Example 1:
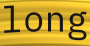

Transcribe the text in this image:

long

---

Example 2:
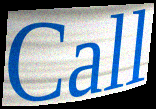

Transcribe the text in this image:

Call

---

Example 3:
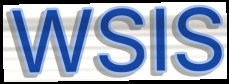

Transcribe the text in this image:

WSIS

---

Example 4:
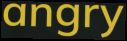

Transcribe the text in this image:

angry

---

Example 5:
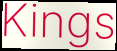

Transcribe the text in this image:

Kings